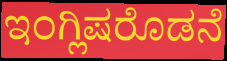
ಇಂಗ್ಲಿಷರೊಡನೆ